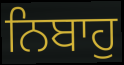
ਨਿਬਾਹੁ